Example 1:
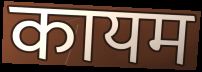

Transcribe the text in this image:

कायम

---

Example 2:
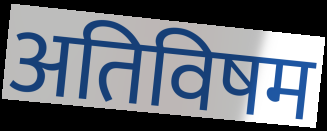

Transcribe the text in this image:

अतिविषम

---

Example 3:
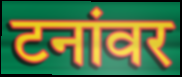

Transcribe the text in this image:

टनांवर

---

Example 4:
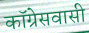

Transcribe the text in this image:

कॉग्रेसवासी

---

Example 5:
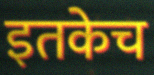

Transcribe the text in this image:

इतकेच